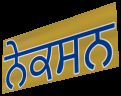
ਨੇਕਸਨ